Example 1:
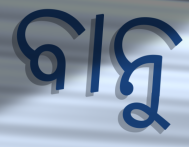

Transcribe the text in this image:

ବାନୁ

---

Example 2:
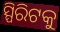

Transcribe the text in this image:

ସ୍ପିରିଟକୁ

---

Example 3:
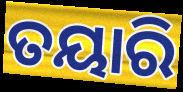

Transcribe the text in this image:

ତୟାରି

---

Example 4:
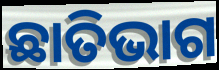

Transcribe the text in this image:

ଛାତିଭାଗ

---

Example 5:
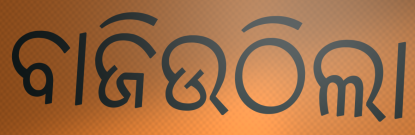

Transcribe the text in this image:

ବାଜିଉଠିଲା